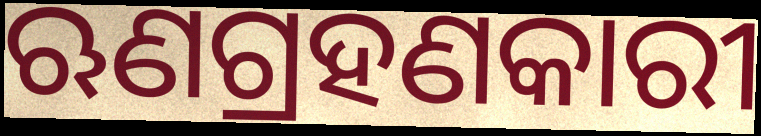
ଋଣଗ୍ରହଣକାରୀ